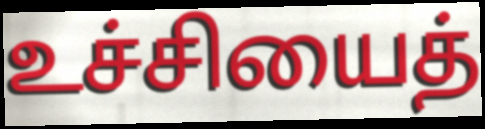
உச்சியைத்